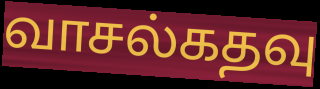
வாசல்கதவு